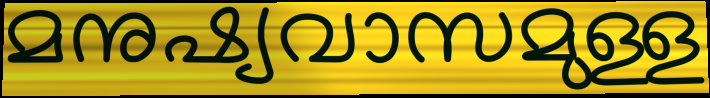
മനുഷ്യവാസമുള്ള